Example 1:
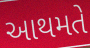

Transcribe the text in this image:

આથમતે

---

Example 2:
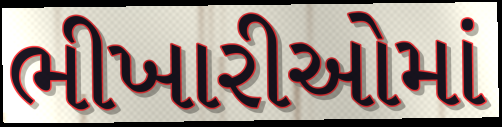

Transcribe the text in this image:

ભીખારીઓમાં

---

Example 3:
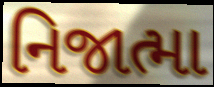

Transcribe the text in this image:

નિજાત્મા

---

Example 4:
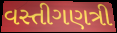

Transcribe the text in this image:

વસ્તીગણત્રી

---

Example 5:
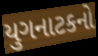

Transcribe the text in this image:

યુગનાટકનો